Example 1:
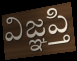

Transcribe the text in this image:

విజ్ఞప్తి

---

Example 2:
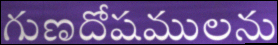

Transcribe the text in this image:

గుణదోషములను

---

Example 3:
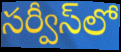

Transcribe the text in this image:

సర్వీస్‌లో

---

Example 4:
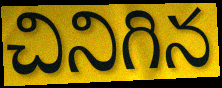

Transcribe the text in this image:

చినిగిన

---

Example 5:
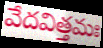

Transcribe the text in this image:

వేదవిత్తమః